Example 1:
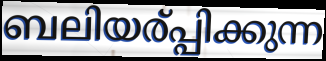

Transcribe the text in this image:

ബലിയര്പ്പിക്കുന്ന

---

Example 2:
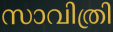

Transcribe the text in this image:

സാവിത്രി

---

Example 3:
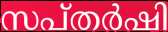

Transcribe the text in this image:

സപ്തർഷി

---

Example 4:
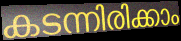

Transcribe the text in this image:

കടന്നിരിക്കാം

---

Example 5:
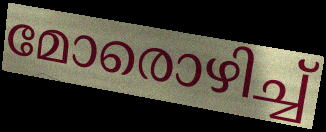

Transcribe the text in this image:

മോരൊഴിച്ച്